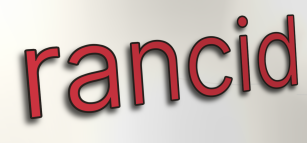
rancid